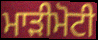
ਮਾੜੀਮੋਟੀ